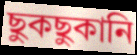
ছুকছুকানি